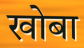
खोबा